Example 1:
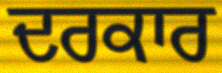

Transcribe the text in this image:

ਦਰਕਾਰ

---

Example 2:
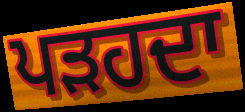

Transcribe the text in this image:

ਪੜਹਦਾ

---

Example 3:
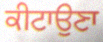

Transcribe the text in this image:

ਕੀਟਾਉਣਾ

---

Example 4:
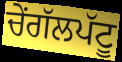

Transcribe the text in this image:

ਚੇਂਗੱਲਪੱਟੂ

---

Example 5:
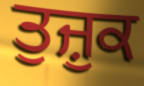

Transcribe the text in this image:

ਤੁਜ਼ੁਕ